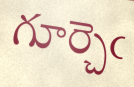
గూర్చెఁ